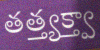
తత్త్యక్త్వా